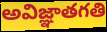
అవిజ్ఞాతగతి